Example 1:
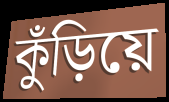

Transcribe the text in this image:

কুঁড়িয়ে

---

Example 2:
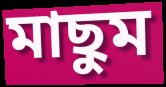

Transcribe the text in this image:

মাছুম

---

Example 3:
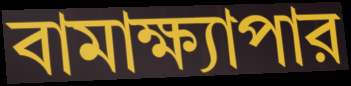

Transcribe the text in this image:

বামাক্ষ্যাপার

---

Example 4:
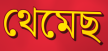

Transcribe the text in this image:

থেমেছ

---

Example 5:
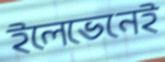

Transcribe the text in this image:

ইলেভেনেই